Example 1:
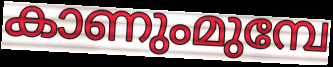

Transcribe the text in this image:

കാണുംമുമ്പേ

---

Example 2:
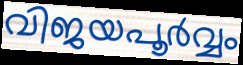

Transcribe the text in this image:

വിജയപൂർവ്വം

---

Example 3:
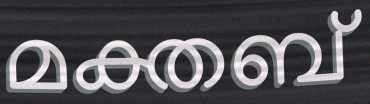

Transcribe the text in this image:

മക്തബ്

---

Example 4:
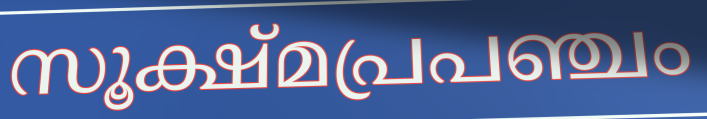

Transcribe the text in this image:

സൂക്ഷ്മപ്രപഞ്ചം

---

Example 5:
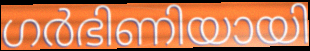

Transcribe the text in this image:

ഗർഭിണിയായി